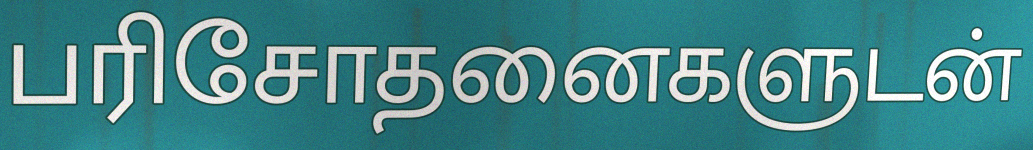
பரிசோதனைகளுடன்